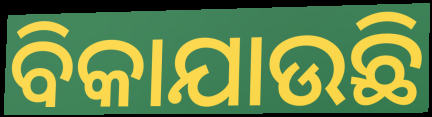
ବିକାଯାଉଛି